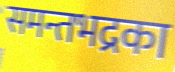
समन्तभद्रका